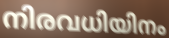
നിരവധിയിനം